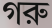
গরু